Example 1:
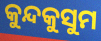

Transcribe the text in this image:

କୁନ୍ଦକୁସୁମ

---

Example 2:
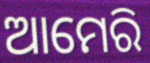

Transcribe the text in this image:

ଆମେରି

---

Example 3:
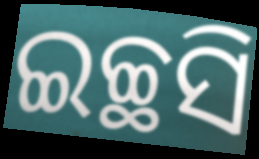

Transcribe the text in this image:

ଇଚ୍ଛସି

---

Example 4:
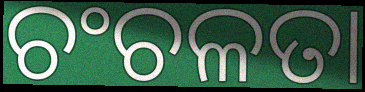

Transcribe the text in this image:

ଚଂଚଳତା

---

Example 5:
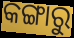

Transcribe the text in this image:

କଙ୍ଗାରୁ